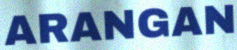
ARANGAN